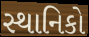
સ્થાનિકો